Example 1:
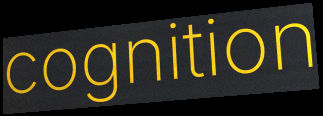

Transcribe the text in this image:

cognition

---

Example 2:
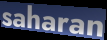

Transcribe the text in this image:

saharan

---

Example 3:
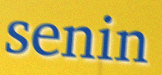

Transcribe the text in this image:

senin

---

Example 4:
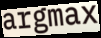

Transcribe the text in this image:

argmax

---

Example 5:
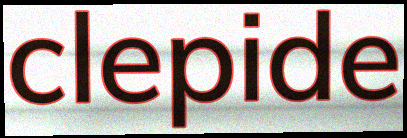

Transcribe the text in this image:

clepide